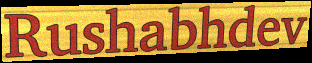
Rushabhdev